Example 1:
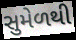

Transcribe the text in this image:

સુમેળથી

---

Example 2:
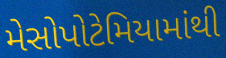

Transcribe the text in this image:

મેસોપોટેમિયામાંથી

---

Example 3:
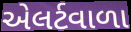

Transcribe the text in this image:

એલર્ટવાળા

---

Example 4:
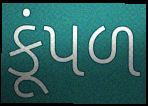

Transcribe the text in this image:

કૂંપળ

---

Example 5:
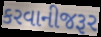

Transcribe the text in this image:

કરવાનીજરૂર